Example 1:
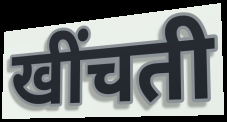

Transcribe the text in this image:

खींचती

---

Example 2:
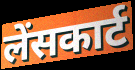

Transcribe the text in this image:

लेंसकार्ट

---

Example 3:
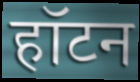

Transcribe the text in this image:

हॉटन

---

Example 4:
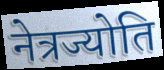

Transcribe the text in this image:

नेत्रज्योति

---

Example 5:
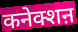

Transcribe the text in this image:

कनेक्शऩ